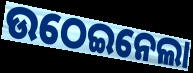
ଉଠେଇନେଲା